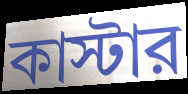
কাস্টার